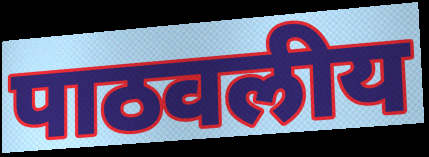
पाठवलीय